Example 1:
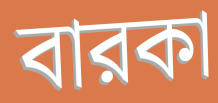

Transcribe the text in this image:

বারকা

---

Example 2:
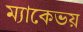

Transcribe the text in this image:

ম্যাকেভয়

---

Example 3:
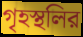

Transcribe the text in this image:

গৃহস্থলির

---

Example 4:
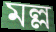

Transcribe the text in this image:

মল্ল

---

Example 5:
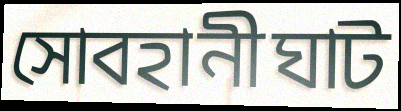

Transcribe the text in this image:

সোবহানীঘাট